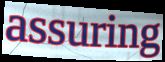
assuring